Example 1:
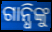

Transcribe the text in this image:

ଗାନ୍ଧିଙ୍କୁ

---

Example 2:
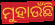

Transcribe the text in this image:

ମୁହାଉଁଛି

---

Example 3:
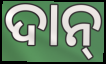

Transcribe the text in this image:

ଦାନ୍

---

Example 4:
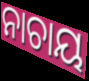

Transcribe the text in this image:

ନାଚାୟ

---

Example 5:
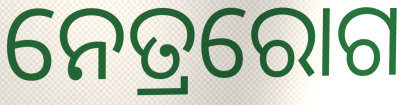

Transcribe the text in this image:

ନେତ୍ରରୋଗ